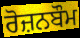
ਰੋਜ਼ਨਬੌਮ